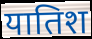
यातिश